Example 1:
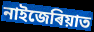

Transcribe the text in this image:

নাইজেৰিয়াত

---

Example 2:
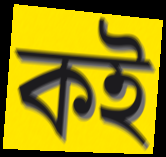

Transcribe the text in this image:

কই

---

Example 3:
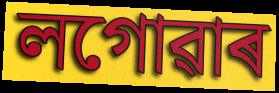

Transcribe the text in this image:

লগোৱাৰ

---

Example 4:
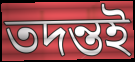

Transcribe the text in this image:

তদন্তই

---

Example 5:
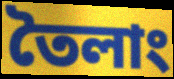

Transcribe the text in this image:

তৈলাং